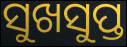
ସୁଖସୁପ୍ତ